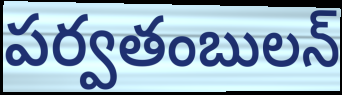
పర్వతంబులన్